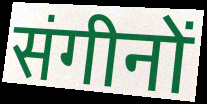
संगीनों